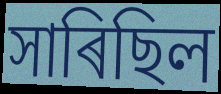
সাৰিছিল